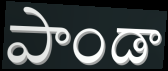
పాండా